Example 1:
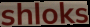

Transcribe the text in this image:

shloks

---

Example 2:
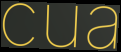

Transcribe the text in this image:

cua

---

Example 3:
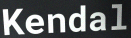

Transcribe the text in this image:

Kendal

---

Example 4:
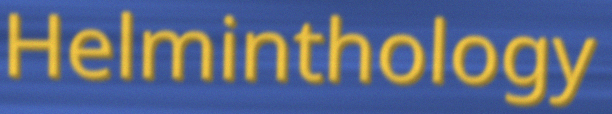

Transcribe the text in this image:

Helminthology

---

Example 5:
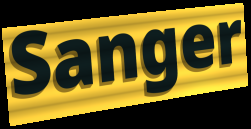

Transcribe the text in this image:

Sanger